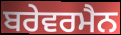
ਬਰੇਵਰਮੈਨ